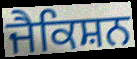
ਜੈਕਿਸ਼ਨ